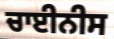
ਚਾਈਨੀਸ